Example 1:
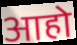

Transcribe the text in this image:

आहो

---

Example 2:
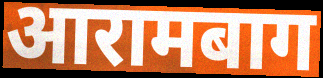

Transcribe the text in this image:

आरामबाग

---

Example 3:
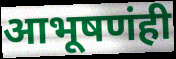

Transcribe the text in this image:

आभूषणंही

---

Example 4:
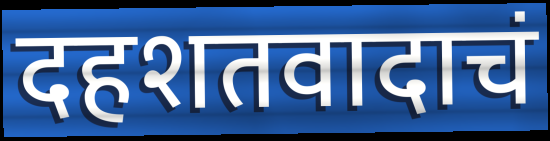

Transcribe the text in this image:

दहशतवादाचं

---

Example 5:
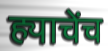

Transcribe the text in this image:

ह्याचेंच